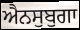
ਐਨਸੁਬੁਗਾ